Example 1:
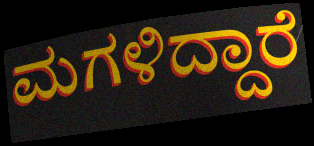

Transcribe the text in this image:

ಮಗಳಿದ್ದಾರೆ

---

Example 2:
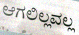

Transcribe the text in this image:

ಆಗಲಿಲ್ಲವಲ್ಲ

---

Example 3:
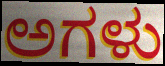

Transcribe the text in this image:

ಅಗಳು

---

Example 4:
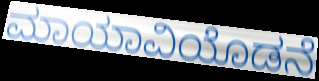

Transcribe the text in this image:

ಮಾಯಾವಿಯೊಡನೆ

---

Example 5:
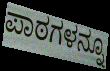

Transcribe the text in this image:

ಪಾಠಗಳನ್ನೂ